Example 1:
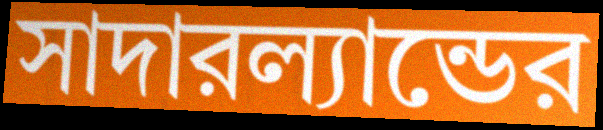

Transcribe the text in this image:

সাদারল্যান্ডের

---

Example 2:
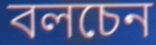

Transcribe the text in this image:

বলচেন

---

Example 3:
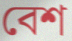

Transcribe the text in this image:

বেশ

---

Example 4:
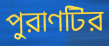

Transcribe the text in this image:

পুরাণটির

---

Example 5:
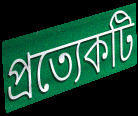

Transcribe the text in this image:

প্রত্যেকটি